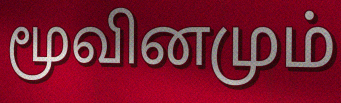
மூவினமும்